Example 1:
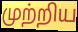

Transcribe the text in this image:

முற்றிய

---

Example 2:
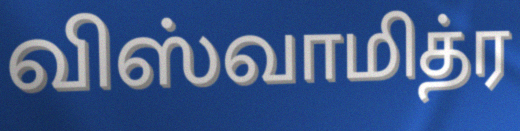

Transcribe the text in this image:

விஸ்வாமித்ர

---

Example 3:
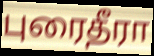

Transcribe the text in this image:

புரைதீரா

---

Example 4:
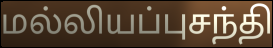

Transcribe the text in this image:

மல்லியப்புசந்தி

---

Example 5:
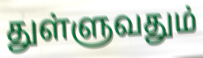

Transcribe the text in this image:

துள்ளுவதும்